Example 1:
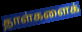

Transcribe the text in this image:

தாள்களைக்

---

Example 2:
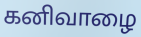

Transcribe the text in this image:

கனிவாழை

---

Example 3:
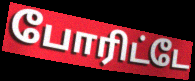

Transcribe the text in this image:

போரிட்டே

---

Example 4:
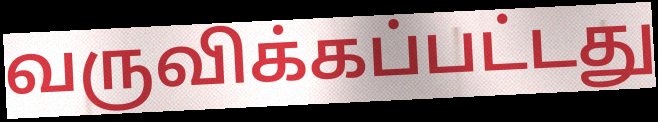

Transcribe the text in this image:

வருவிக்கப்பட்டது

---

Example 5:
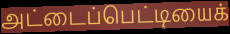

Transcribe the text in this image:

அட்டைப்பெட்டியைக்